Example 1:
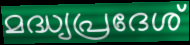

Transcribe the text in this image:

മദ്ധ്യപ്രദേശ്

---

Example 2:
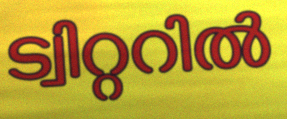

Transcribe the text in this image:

ട്വിറ്ററിൽ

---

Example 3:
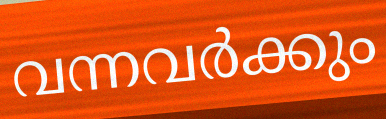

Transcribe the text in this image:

വന്നവർക്കും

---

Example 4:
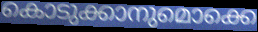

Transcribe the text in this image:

കൊടുക്കാനുമൊക്കെ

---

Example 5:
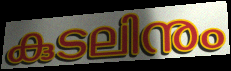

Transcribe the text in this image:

കുടലിനും